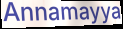
Annamayya